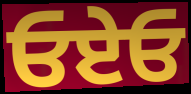
ਓਏਓ